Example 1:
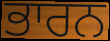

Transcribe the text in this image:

ਭਾਰਨ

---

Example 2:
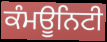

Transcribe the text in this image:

ਕੰਮਊਨਿਟੀ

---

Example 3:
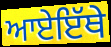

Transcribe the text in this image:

ਆਏਇੱਥੇ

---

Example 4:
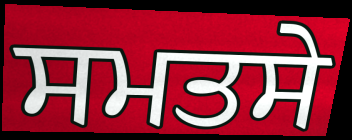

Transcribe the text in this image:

ਸਮਤਸੇ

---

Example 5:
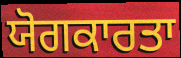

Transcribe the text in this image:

ਯੋਗਕਾਰਤਾ